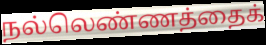
நல்லெண்ணத்தைக்